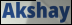
Akshay